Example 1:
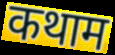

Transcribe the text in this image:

कथाम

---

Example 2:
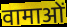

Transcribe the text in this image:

वामाओं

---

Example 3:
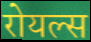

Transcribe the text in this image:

रोयल्स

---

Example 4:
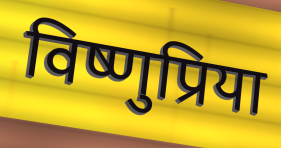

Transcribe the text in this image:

विष्णुप्रिया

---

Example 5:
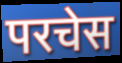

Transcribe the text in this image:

परचेस